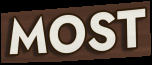
MOST